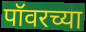
पॉवरच्या